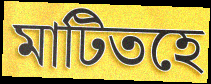
মাটিতহে